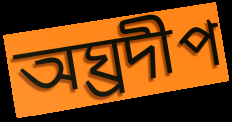
অঘ্ৰদীপ